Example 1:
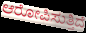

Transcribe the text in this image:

ಆರೋಪಿಸುತ್ತಿದೆ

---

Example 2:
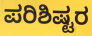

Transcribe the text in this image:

ಪರಿಶಿಷ್ಟರ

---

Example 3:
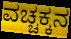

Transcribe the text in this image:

ವಚ್ಚಕ್ಕನ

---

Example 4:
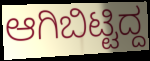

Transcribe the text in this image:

ಆಗಿಬಿಟ್ಟಿದ್ದ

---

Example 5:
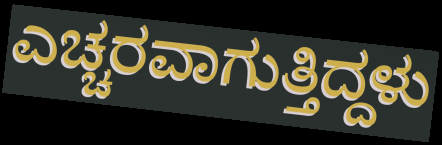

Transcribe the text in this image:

ಎಚ್ಚರವಾಗುತ್ತಿದ್ದಳು